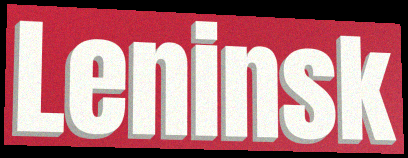
Leninsk